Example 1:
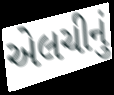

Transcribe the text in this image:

એલચીનું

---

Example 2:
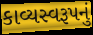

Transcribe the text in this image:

કાવ્યસ્વરૂપનું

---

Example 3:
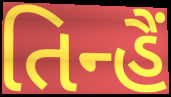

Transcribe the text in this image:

તિન્હૈં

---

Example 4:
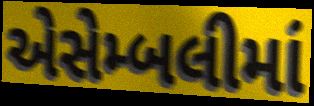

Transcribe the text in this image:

એસેમ્બલીમાં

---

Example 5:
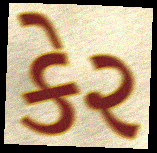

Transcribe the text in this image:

કેર